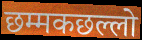
छम्मकछल्लो